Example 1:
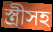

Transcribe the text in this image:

স্ত্রীসহ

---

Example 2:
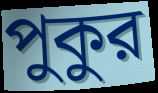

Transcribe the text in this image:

পুকুর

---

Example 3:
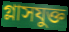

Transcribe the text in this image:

গ্লাসযুক্ত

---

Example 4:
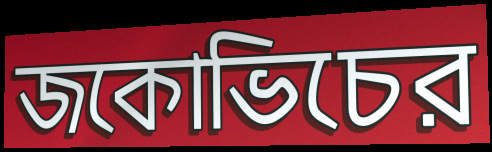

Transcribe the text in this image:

জকোভিচের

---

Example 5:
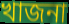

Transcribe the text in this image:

খাজনা